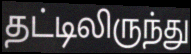
தட்டிலிருந்து